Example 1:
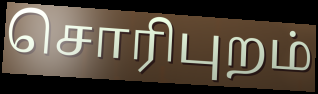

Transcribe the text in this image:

சொரிபுறம்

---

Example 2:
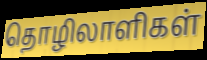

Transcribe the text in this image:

தொழிலாளிகள்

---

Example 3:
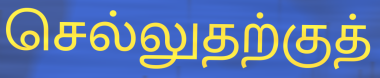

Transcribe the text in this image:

செல்லுதற்குத்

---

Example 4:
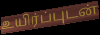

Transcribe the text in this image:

உயிர்ப்புடன்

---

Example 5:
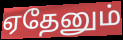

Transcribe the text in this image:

ஏதேனும்